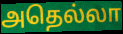
அதெல்லா